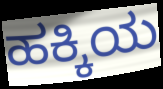
ಹಕ್ಕಿಯ